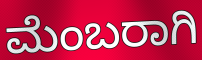
ಮೆಂಬರಾಗಿ